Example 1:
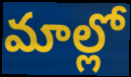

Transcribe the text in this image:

మాల్లో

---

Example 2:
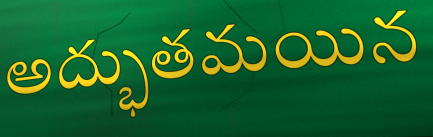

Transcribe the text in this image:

అద్భుతమయిన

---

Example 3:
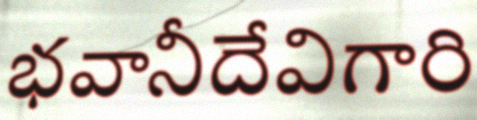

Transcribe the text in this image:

భవానీదేవిగారి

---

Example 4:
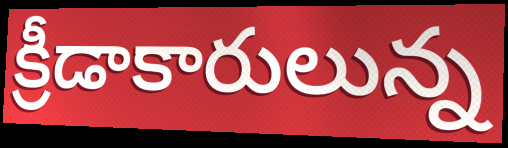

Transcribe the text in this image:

క్రీడాకారులున్న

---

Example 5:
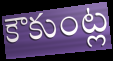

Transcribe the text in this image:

కౌకుంట్ల